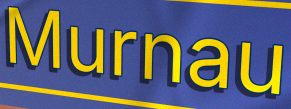
Murnau